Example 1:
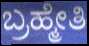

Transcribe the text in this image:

ಬ್ರಹ್ಮೇತಿ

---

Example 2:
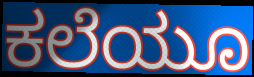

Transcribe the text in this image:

ಕಲೆಯೂ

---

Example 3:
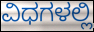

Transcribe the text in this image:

ವಿಧಗಳಲ್ಲಿ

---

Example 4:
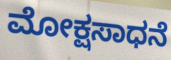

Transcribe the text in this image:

ಮೋಕ್ಷಸಾಧನೆ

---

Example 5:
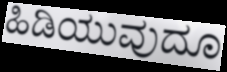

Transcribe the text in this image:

ಹಿಡಿಯುವುದೂ